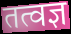
तत्वज्ञ